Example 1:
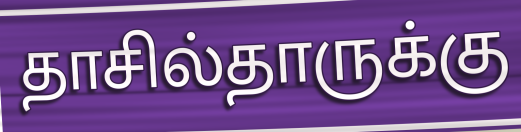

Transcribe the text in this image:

தாசில்தாருக்கு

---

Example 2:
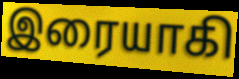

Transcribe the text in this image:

இரையாகி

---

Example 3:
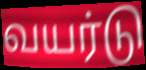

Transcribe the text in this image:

வயர்டு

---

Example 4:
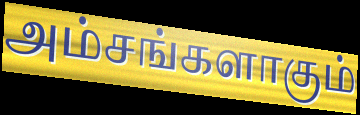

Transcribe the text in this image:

அம்சங்களாகும்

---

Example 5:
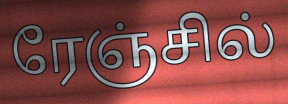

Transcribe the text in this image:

ரேஞ்சில்